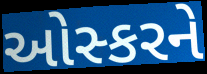
ઓસ્કરને